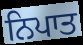
ਨਿਪਾਤ